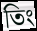
তিং